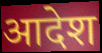
आदेश